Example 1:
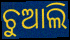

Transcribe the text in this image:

ଚୁଆଲି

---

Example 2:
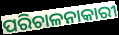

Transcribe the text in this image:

ପରିଚାଳନାକାରୀ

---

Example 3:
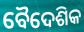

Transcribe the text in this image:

ବୈଦେଶିକ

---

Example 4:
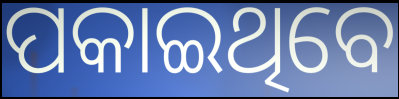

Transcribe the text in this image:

ପକାଇଥିବେ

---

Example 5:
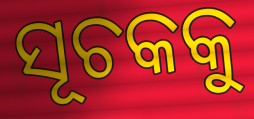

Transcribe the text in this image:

ସୂଚକକୁ